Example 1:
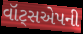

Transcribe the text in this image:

વૉટ્સએપની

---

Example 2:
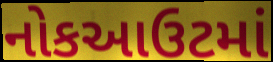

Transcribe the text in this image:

નોકઆઉટમાં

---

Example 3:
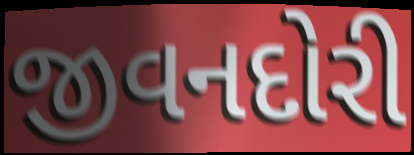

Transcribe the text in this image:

જીવનદોરી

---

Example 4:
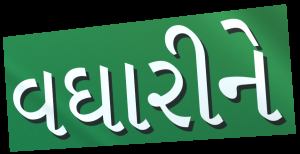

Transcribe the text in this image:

વઘારીને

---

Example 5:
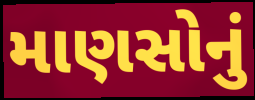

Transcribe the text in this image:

માણસોનું